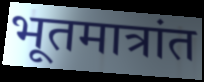
भूतमात्रांत